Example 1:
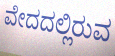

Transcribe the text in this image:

ವೇದದಲ್ಲಿರುವ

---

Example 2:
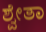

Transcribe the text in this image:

ಶ್ವೇತಾ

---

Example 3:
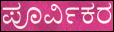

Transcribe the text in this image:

ಪೂರ್ವಿಕರ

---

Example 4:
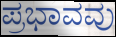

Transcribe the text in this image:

ಪ್ರಭಾವವು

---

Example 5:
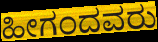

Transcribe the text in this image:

ಹೀಗಂದವರು